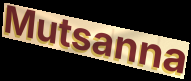
Mutsanna